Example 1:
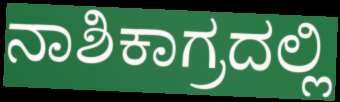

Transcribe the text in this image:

ನಾಶಿಕಾಗ್ರದಲ್ಲಿ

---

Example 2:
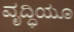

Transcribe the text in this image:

ವೃದ್ಧಿಯೂ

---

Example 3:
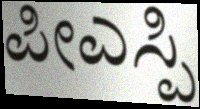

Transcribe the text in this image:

ಪೀಎಸ್ಪಿ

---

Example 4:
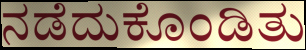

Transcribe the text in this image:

ನಡೆದುಕೊಂಡಿತು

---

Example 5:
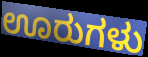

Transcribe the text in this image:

ಊರುಗಳು